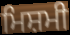
ਮਿਸ਼ਮੀ